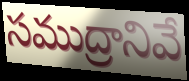
సముద్రానివే